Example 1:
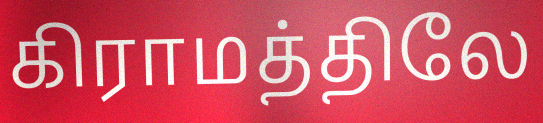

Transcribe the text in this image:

கிராமத்திலே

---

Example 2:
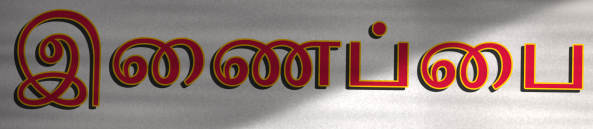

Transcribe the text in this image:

இணைப்பை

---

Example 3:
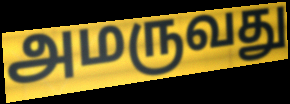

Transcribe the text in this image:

அமருவது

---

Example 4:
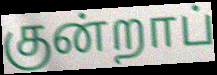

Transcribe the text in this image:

குன்றாப்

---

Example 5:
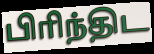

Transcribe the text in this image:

பிரிந்திட